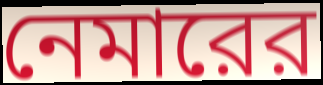
নেমারের